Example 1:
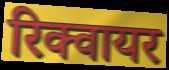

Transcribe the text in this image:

रिक्वायर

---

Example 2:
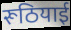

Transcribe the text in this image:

रूठियाई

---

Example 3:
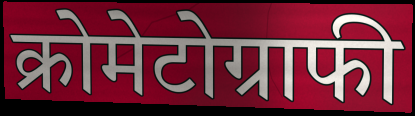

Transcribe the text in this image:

क्रोमेटोग्राफी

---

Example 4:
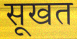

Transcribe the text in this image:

सूखत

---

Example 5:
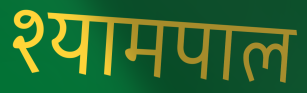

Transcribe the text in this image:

श्यामपाल